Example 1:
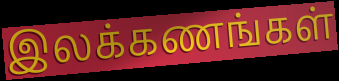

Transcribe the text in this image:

இலக்கணங்கள்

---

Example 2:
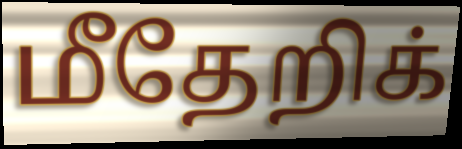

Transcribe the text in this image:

மீதேறிக்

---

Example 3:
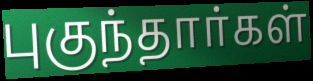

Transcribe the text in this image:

புகுந்தார்கள்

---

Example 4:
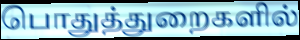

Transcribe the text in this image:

பொதுத்துறைகளில்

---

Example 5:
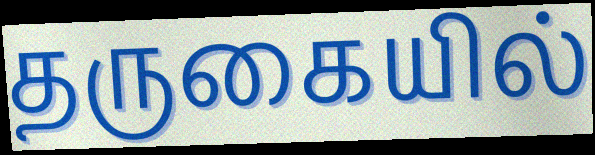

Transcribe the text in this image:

தருகையில்